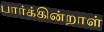
பார்க்கின்றாள்